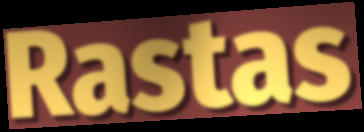
Rastas